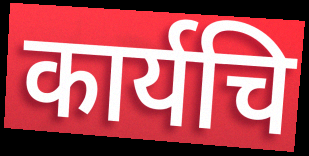
कार्यचि